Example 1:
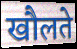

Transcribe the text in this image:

खौलते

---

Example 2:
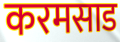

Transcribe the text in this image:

करमसाड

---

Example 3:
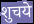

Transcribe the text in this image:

शुचये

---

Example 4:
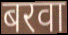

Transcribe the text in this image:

बरवा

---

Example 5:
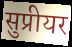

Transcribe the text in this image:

सुप्रीयर